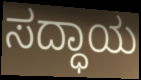
ಸದ್ಧಾಯ